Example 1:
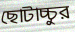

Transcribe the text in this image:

ছোটাচ্চুর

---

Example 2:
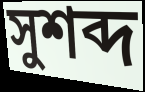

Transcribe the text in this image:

সুশব্দ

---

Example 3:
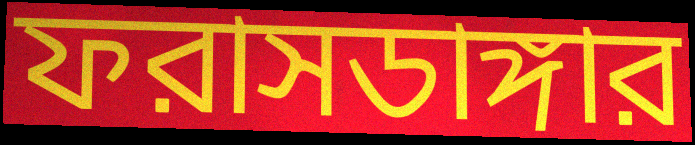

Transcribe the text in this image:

ফরাসডাঙ্গার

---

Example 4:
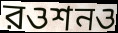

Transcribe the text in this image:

রওশনও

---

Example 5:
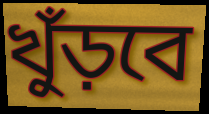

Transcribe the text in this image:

খুঁড়বে